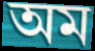
অম